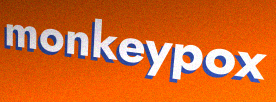
monkeypox